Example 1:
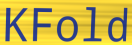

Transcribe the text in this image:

KFold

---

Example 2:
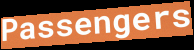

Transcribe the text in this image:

Passengers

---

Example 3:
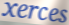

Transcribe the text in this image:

xerces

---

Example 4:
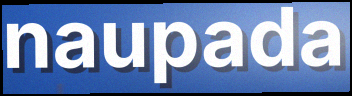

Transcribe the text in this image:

naupada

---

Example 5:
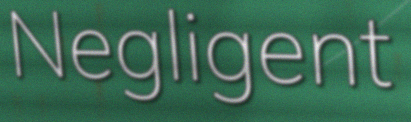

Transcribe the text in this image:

Negligent